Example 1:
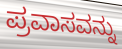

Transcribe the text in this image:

ಪ್ರವಾಸವನ್ನು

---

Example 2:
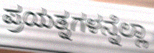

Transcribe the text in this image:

ಪ್ರಯತ್ನಗಳನ್ನೆಲ್ಲಾ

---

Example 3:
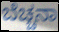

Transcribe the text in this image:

ಬೆಚ್ಚನಾ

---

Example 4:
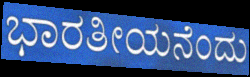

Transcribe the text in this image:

ಭಾರತೀಯನೆಂದು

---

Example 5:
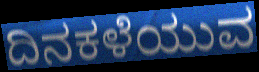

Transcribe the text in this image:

ದಿನಕಳೆಯುವ